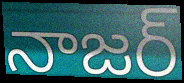
నాజర్